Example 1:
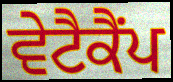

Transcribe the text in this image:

ਵੇਟੈਕੈਂਪ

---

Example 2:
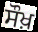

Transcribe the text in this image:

ਸੌਖ਼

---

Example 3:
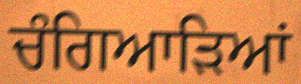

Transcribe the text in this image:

ਚੰਗਿਆੜਿਆਂ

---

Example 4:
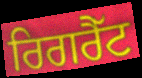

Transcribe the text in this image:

ਰਿਗਰੈੱਟ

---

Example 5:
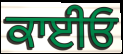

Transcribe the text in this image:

ਕਾਈਓ